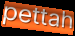
pettah